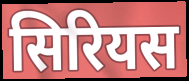
सिरियस